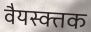
वैयस्क्तक